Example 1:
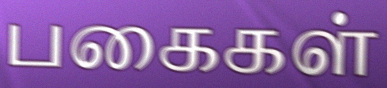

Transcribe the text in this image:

பகைகள்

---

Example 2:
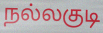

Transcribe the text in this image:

நல்லகுடி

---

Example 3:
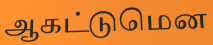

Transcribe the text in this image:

ஆகட்டுமென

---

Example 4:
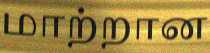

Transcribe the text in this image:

மாற்றான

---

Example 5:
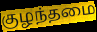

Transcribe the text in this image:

குழந்தமை